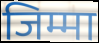
जिम्‍मा